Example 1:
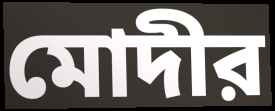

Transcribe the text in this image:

মোদীর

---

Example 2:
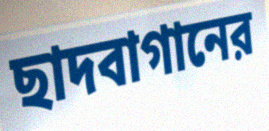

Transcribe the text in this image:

ছাদবাগানের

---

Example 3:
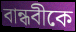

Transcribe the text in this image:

বান্ধবীকে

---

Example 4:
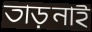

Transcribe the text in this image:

তাড়নাই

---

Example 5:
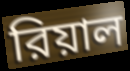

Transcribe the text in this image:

রিয়াল